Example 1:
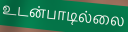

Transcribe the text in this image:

உடன்பாடில்லை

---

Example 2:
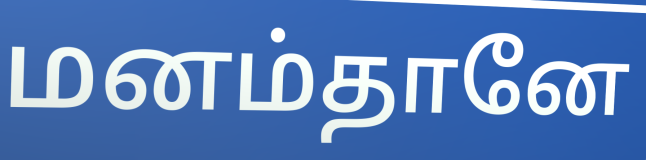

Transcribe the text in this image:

மனம்தானே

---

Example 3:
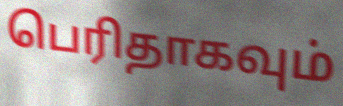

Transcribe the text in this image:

பெரிதாகவும்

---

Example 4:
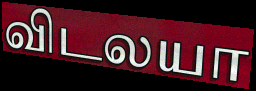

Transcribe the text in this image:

விடலயா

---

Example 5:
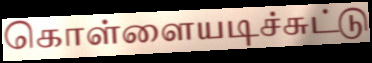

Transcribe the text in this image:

கொள்ளையடிச்சுட்டு